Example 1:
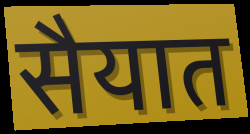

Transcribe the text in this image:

सैयात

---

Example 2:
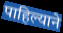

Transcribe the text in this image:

पाहिल्याने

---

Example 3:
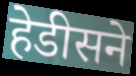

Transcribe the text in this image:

हेडीसने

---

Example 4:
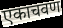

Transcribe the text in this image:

एकाचवण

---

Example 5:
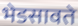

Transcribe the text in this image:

भेडसावते